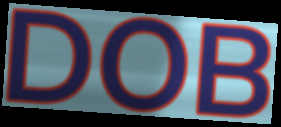
DOB